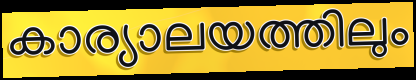
കാര്യാലയത്തിലും